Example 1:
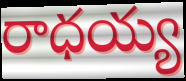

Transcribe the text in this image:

రాధయ్య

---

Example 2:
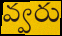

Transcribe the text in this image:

వ్వరు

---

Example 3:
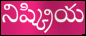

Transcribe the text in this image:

నిష్క్రియ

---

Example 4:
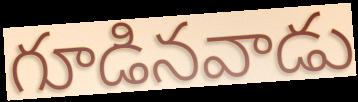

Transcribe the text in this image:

గూడినవాడు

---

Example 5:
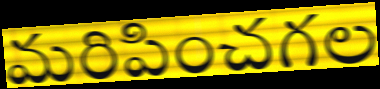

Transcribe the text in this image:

మరిపించగల